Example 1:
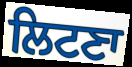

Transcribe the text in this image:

ਲਿਟਣਾ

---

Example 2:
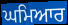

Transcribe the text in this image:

ਘਮਿਆਰ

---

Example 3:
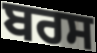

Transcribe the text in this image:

ਬਰਸ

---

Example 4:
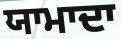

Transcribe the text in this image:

ਯਾਮਾਦਾ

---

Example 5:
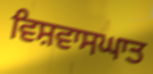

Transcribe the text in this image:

ਵਿਸ਼ਵਾਸਘਾਤ